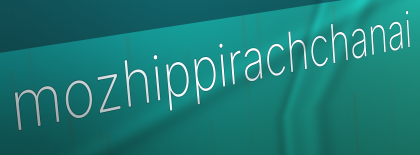
mozhippirachchanai